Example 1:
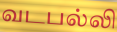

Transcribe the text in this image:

வடபல்லி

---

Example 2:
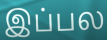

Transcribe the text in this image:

இப்பல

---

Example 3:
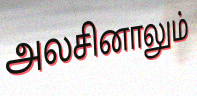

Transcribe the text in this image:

அலசினாலும்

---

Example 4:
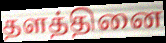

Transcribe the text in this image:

தளத்தினை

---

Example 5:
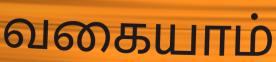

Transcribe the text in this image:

வகையாம்